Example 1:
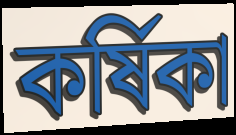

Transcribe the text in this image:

কর্ষিকা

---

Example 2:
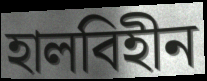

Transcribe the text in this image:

হালবিহীন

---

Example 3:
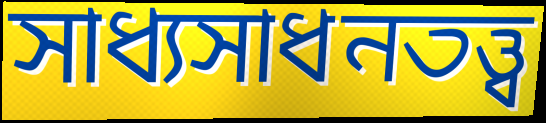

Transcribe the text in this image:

সাধ্যসাধনতত্ত্ব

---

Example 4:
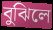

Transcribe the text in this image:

বুঝিলে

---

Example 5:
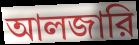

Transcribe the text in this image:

আলজারি